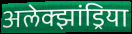
अलेक्झांड्रिया